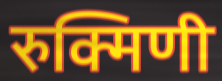
रुक्मिणी